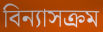
বিন্যাসক্রম